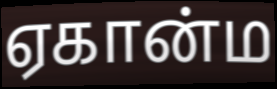
ஏகான்ம